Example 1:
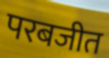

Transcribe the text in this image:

परबजीत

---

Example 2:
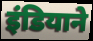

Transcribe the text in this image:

इंडियाने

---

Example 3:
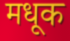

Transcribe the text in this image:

मधूक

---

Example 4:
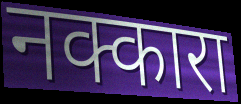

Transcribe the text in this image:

नक्कारा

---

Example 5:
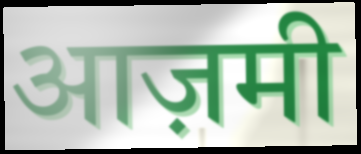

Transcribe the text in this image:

आज़मी